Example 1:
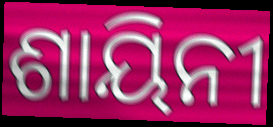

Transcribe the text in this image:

ଶାୟିନୀ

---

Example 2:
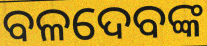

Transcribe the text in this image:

ବଳଦେବଙ୍କ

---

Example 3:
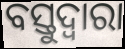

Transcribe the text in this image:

ବସ୍ତୁଦ୍ଵାରା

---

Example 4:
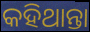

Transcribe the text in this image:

କହିଥାନ୍ତା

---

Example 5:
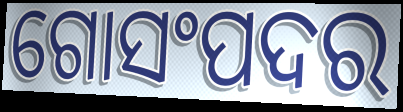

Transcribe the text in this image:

ଗୋସଂପଦର